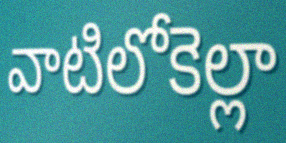
వాటిలోకెల్లా